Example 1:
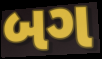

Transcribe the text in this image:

બગ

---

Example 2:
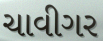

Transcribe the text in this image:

ચાવીગર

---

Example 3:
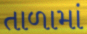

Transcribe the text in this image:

તાળામાં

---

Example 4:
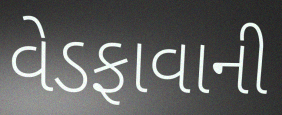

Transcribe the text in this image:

વેડફાવાની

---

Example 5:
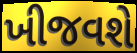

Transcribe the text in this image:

ખીજવશે